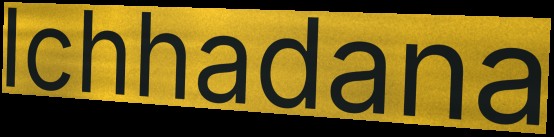
Ichhadana